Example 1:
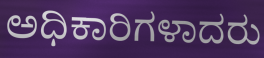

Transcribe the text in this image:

ಅಧಿಕಾರಿಗಳಾದರು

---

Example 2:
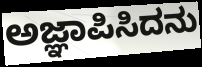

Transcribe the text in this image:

ಅಜ್ಞಾಪಿಸಿದನು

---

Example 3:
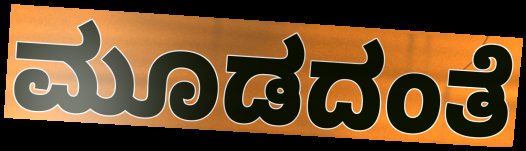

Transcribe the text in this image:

ಮೂಡದಂತೆ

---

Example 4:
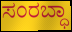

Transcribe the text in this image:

ಸಂರಬ್ಧಾ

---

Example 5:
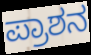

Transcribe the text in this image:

ಪ್ರಾಶನ